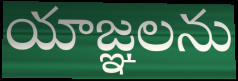
యాజ్ఞలను